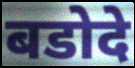
बडोदे